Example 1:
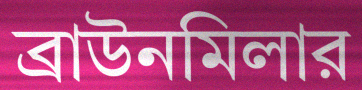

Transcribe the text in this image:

ব্রাউনমিলার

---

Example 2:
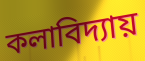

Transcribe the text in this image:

কলাবিদ্যায়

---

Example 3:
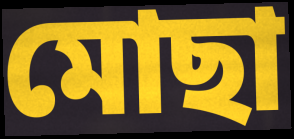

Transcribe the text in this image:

মোছা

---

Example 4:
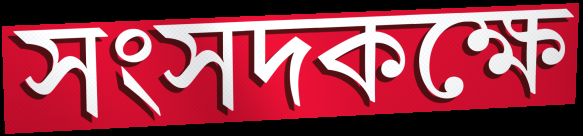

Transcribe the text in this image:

সংসদকক্ষে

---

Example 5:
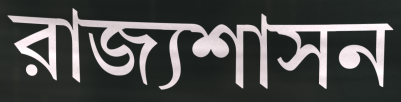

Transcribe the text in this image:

রাজ্যশাসন